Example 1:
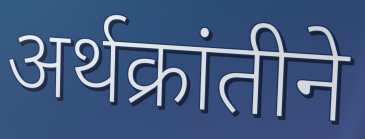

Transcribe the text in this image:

अर्थक्रांतीने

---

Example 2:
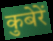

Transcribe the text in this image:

कुबेरें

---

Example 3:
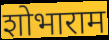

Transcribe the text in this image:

शोभाराम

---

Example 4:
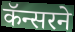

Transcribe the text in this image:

कॅन्सरने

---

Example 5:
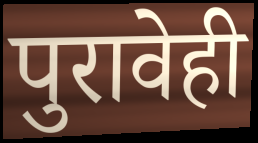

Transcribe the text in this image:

पुरावेही